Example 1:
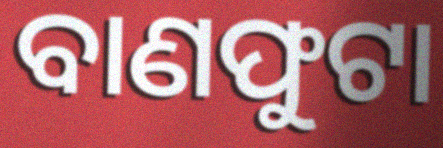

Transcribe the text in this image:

ବାଣଫୁଟା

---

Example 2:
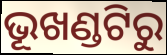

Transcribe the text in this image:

ଭୂଖଣ୍ଡଟିରୁ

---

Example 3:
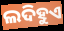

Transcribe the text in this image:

ଲଦିହୁଏ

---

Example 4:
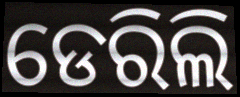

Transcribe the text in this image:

ଡେରିଲି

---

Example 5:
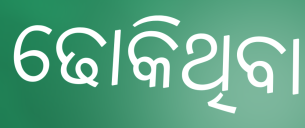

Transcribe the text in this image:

ଢୋକିଥିବା